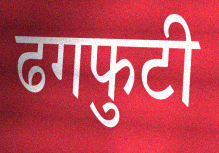
ढगफुटी